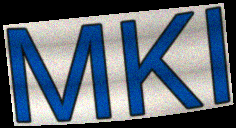
MKI